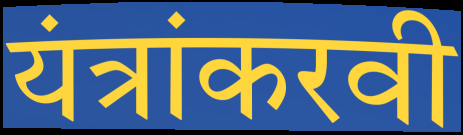
यंत्रांकरवी